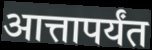
आत्तापर्यंत